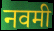
नवमी